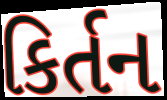
કિર્તન